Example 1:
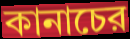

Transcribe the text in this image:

কানাচের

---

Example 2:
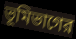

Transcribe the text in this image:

ভূমিভাগের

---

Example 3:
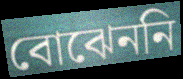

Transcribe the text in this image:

বোঝেননি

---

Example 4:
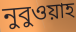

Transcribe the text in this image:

নুবুওয়াহ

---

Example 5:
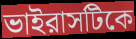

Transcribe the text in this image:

ভাইরাসটিকে